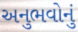
અનુભવોનું